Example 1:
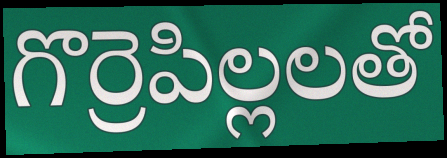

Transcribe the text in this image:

గొర్రెపిల్లలతో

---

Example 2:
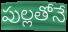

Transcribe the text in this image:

పుల్లతోనే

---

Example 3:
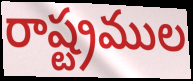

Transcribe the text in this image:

రాష్ట్రముల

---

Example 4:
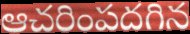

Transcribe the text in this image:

ఆచరింపదగిన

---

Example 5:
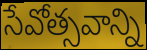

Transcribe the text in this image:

సేవోత్సవాన్ని